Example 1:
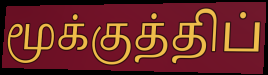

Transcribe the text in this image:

மூக்குத்திப்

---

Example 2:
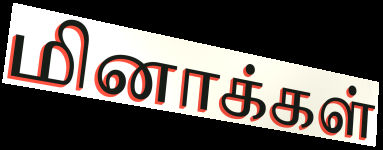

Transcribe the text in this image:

மினாக்கள்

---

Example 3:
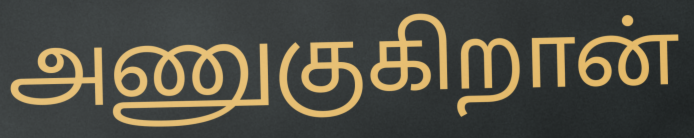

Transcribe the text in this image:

அணுகுகிறான்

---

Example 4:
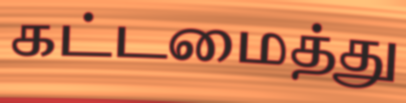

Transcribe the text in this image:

கட்டமைத்து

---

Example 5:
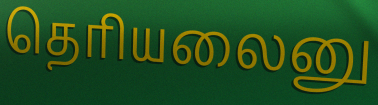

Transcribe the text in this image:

தெரியலைனு